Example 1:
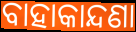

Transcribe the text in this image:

ବାହାକାନ୍ଦଣା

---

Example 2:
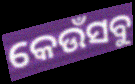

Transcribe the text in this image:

କେଉଁସବୁ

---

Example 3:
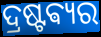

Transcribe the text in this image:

ଦ୍ରଷ୍ଟଵ୍ୟର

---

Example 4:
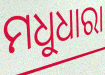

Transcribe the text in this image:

ମଧୁଧାରା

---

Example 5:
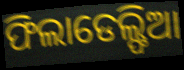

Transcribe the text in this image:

ଫିଲାଡେଲ୍ଫିଆ